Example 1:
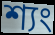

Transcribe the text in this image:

শ্যং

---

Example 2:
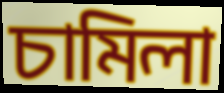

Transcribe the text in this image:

চামিলা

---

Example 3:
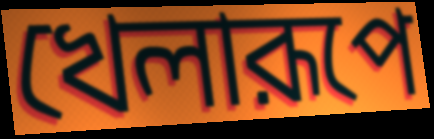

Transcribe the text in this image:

খেলারূপে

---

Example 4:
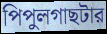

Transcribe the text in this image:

পিপুলগাছটার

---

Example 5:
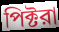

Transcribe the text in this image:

পিক্টরা